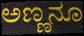
ಅಣ್ಣನೂ